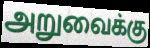
அறுவைக்கு